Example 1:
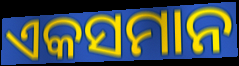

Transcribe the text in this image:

ଏକସମାନ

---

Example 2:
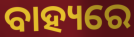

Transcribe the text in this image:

ବାହ୍ୟରେ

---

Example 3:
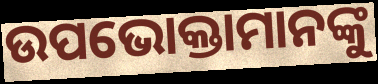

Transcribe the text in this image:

ଉପଭୋକ୍ତାମାନଙ୍କୁ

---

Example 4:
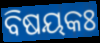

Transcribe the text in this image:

ବିଷୟକଃ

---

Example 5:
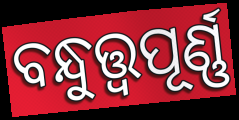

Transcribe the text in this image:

ବନ୍ଧୁତ୍ତ୍ୱପୂର୍ଣ୍ଣ